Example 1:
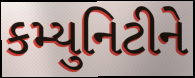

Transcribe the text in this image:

કમ્યુનિટીને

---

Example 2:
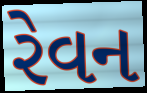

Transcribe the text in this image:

રેવન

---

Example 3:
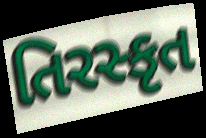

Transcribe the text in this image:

તિરસ્કૃત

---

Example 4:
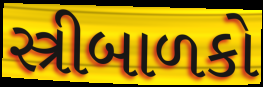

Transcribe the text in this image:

સ્ત્રીબાળકો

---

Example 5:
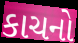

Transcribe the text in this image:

કાચનો